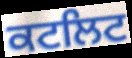
ਕਟਲਿਟ